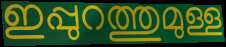
ഇപ്പുറത്തുമുള്ള